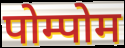
पोम्पोम